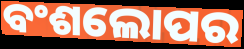
ବଂଶଲୋପର